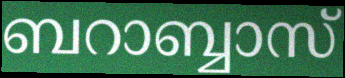
ബറാബ്ബാസ്